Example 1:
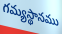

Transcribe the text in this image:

గమ్యస్థానము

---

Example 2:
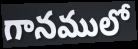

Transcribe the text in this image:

గానములో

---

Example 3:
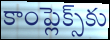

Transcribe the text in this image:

కాంప్లెక్స్‌కు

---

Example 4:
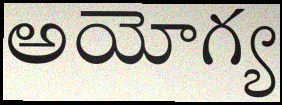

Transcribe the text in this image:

అయోగ్య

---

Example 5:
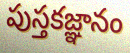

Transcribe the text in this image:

పుస్తకజ్ఞానం